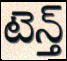
టెన్త్